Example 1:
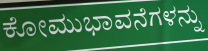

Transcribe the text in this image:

ಕೋಮುಭಾವನೆಗಳನ್ನು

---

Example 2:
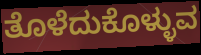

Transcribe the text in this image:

ತೊಳೆದುಕೊಳ್ಳುವ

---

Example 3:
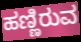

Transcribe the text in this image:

ಹಣ್ಣಿರುವ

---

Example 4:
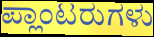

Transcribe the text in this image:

ಪ್ಲಾಂಟರುಗಳು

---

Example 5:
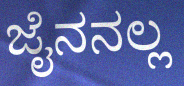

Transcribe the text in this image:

ಜೈನನಲ್ಲ